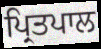
ਪ੍ਰਿਤਪਾਲ